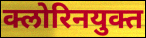
क्लोरिनयुक्त